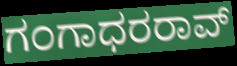
ಗಂಗಾಧರರಾವ್